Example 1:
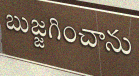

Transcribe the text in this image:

బుజ్జగించాను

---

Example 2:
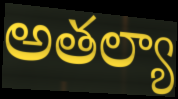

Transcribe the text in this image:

అతల్యా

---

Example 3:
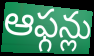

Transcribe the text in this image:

ఆఫ్గన్లు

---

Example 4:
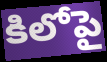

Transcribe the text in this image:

కిలోపై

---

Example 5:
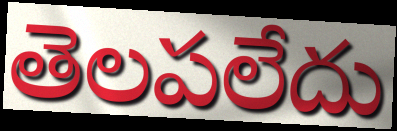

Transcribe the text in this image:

తెలపలేదు